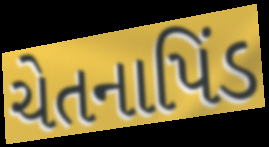
ચેતનાપિંડ